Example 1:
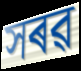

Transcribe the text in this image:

সৰৱ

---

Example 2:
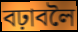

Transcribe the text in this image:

বঢ়াবলৈ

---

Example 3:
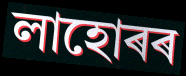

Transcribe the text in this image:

লাহোৰৰ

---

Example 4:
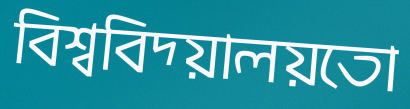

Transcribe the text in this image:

বিশ্ববিদ্য়ালয়তো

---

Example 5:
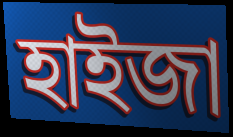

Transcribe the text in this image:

হাইজা